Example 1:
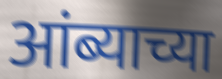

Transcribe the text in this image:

आंब्याच्या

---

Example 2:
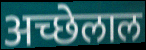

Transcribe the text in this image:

अच्छेलाल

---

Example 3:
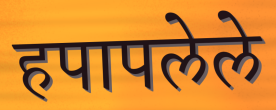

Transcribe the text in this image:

हपापलेले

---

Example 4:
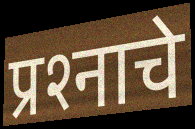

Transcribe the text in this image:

प्रश्नाचे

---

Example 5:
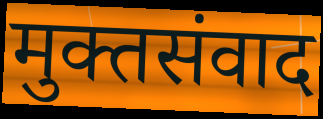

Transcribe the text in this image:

मुक्तसंवाद